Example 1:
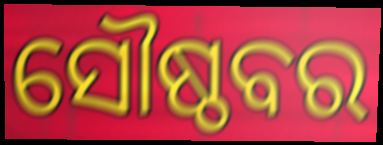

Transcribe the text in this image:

ସୌଷ୍ଠବର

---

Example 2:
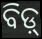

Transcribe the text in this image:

ବିଡ଼୍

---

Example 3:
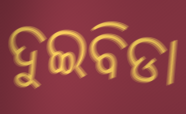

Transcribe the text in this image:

ଦୁଇବିଡା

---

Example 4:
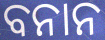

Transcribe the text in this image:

ବନାନ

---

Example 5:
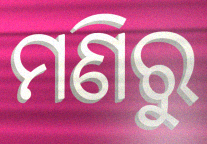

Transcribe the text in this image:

ମଣିରୁ